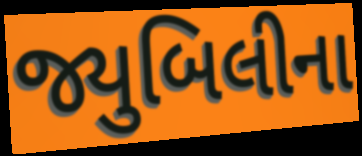
જ્યુબિલીના